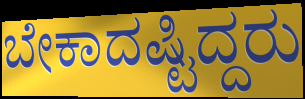
ಬೇಕಾದಷ್ಟಿದ್ದರು